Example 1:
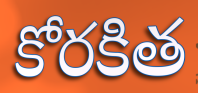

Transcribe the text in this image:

కోరకిత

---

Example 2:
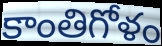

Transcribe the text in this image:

కాంతిగోళం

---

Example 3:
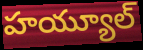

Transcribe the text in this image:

హయ్యూల్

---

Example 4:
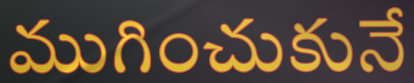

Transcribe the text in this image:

ముగించుకునే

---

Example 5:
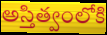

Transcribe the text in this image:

అస్తిత్వంలోకి